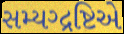
સમ્યગ્દ્રષ્ટિએ